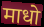
माधो